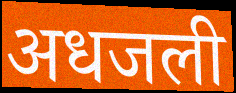
अधजली